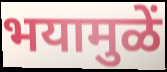
भयामुळें